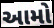
આમો